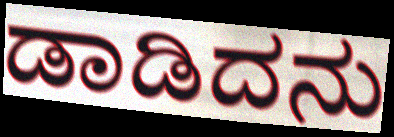
ಡಾಡಿದನು